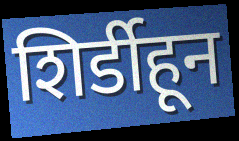
शिर्डीहून